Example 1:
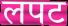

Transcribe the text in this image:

लपट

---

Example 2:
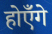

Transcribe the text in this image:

होएँगे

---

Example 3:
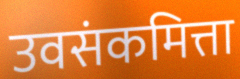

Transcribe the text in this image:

उवसंकमित्ता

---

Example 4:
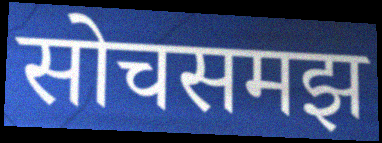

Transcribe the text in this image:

सोचसमझ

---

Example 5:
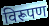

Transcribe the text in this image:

विरूपण